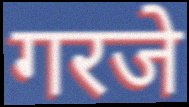
गरजे